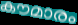
കൗമാരം